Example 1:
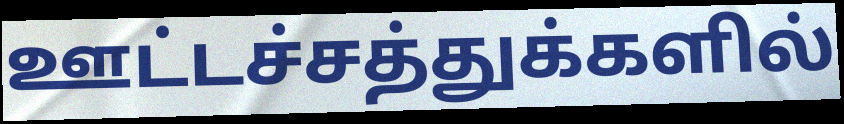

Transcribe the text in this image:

ஊட்டச்சத்துக்களில்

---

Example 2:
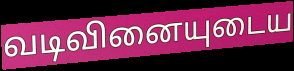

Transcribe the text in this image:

வடிவினையுடைய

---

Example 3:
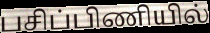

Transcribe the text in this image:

பசிப்பிணியில்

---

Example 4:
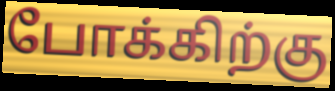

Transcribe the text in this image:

போக்கிற்கு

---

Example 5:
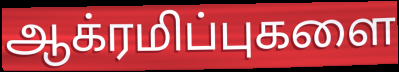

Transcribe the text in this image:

ஆக்ரமிப்புகளை